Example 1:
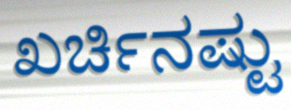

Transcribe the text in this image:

ಖರ್ಚಿನಷ್ಟು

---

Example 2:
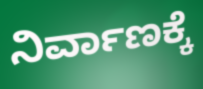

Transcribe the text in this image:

ನಿರ್ವಾಣಕ್ಕೆ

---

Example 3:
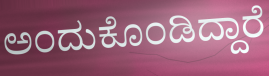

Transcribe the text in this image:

ಅಂದುಕೊಂಡಿದ್ದಾರೆ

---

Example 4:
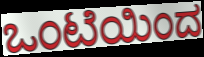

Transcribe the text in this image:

ಒಂಟೆಯಿಂದ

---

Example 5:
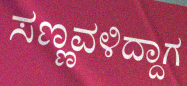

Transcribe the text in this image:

ಸಣ್ಣವಳಿದ್ದಾಗ